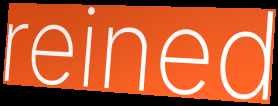
reined